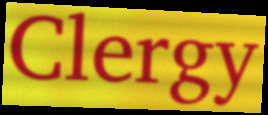
Clergy